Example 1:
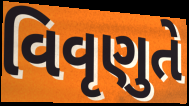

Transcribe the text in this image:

વિવૃણુતે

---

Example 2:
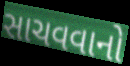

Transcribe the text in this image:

સાચવવાનો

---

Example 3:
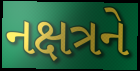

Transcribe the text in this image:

નક્ષત્રને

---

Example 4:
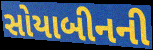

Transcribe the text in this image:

સોયાબીનની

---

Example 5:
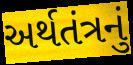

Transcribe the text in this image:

અર્થતંત્રનું